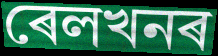
ৰেলখনৰ